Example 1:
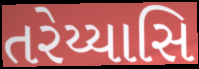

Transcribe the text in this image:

તરેય્યાસિ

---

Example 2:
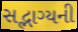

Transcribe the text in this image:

સદ્ભાગ્યની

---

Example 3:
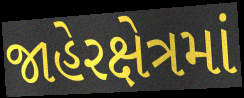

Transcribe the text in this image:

જાહેરક્ષેત્રમાં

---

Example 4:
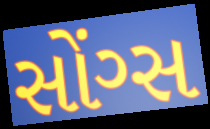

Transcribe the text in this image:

સોંગ્સ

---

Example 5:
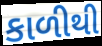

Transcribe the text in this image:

કાળીથી